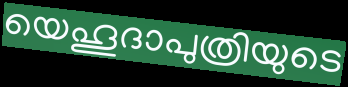
യെഹൂദാപുത്രിയുടെ